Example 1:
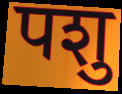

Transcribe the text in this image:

पशु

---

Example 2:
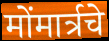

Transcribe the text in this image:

मोंमार्त्रचे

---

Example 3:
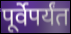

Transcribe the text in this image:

पूर्वेपर्यंत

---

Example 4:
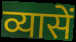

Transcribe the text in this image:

व्यासें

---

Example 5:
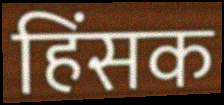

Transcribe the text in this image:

हिंसक